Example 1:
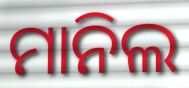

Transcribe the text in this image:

ମାନିଲ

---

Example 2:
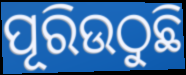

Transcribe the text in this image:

ପୂରିଉଠୁଛି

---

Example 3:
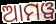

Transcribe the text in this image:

ଆମୱ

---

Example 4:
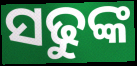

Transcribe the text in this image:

ସଢୁଙ୍କ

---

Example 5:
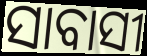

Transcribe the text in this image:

ସାବାସୀ